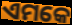
ଏମକେ